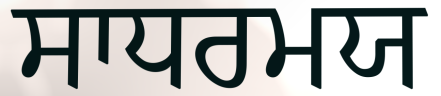
ਸਾਧਰਮਯ